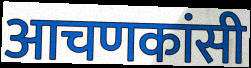
आचणकांसी